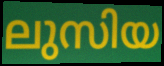
ലുസിയ